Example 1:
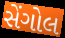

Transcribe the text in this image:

સેંગોલ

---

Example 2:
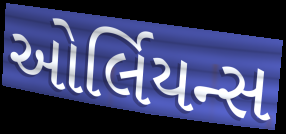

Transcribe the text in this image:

ઓર્લિયન્સ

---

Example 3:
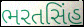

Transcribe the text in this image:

ભરતસિંહ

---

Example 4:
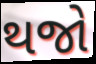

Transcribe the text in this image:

થજો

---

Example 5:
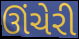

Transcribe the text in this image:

ઊંચેરી